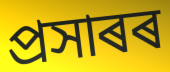
প্ৰসাৰৰ